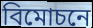
বিমোচনে